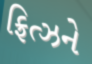
ફ્રિત્ઝને